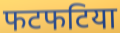
फटफटिया